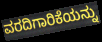
ವರದಿಗಾರಿಕೆಯನ್ನು